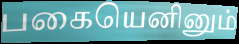
பகையெனினும்